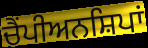
ਚੈਂਪੀਅਨਸ਼ਿਪਾਂ